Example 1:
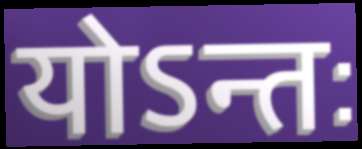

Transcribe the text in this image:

योऽन्तः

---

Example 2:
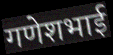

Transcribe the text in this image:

गणेशभाई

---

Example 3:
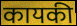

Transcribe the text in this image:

कायकी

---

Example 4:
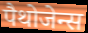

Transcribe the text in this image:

पैथोजेन्स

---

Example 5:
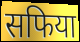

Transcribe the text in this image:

सफिया